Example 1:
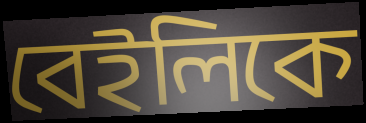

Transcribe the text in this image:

বেইলিকে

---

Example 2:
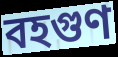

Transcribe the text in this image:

বহগুণ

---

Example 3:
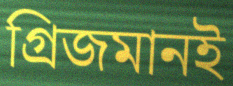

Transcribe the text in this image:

গ্রিজমানই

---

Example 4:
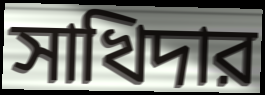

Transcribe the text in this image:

সাখিদার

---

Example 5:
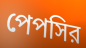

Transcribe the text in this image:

পেপসির